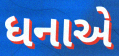
ધનાએ